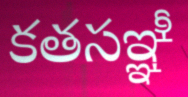
కతసఞ్ఞీ